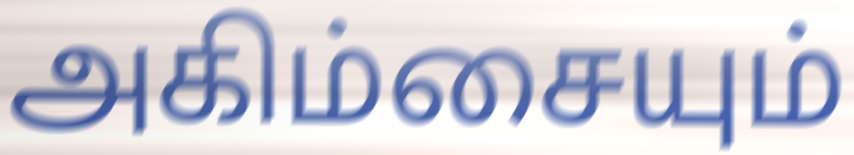
அகிம்சையும்